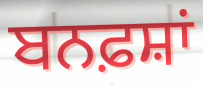
ਬਨਫ਼ਸ਼ਾਂ